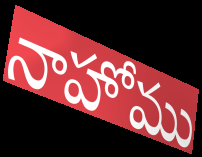
నాహోము